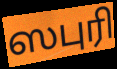
ஸபுரி